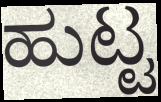
ಹುಟ್ಟ